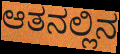
ಆತನಲ್ಲಿನ